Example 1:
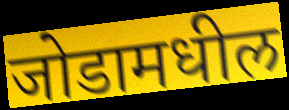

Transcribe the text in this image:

जोडामधील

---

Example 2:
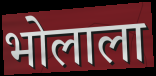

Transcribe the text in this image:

भोलाला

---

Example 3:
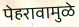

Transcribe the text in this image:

पेहरावामुळे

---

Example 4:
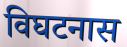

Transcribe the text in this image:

विघटनास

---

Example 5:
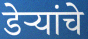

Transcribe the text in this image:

डेर्‍यांचे